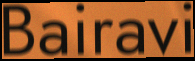
Bairavi